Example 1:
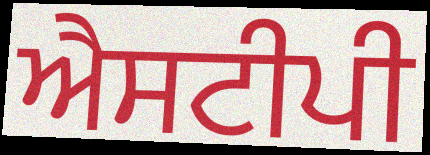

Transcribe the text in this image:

ਐਸਟੀਪੀ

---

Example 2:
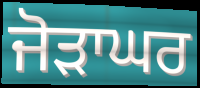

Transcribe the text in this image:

ਜੋੜਾਘਰ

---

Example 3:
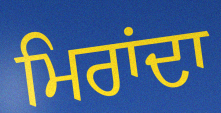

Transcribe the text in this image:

ਮਿਰਾਂਦਾ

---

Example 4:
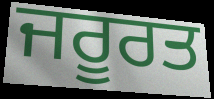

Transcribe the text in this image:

ਜਰੂਰਤ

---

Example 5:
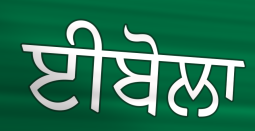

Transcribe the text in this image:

ਈਬੋਲਾ